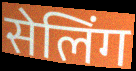
सेलिंग